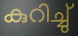
കുറിച്ചു്